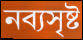
নব্যসৃষ্ট